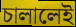
চালালেই